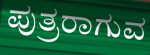
ಪುತ್ರರಾಗುವ